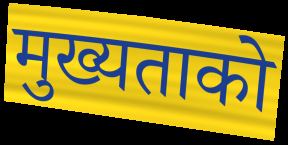
मुख्यताको